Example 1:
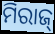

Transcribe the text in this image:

ମିରାଜ୍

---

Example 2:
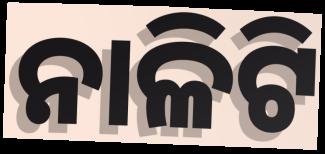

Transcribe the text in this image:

ନାଳିଟି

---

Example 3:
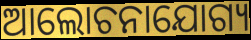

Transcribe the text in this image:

ଆଲୋଚନାଯୋଗ୍ୟ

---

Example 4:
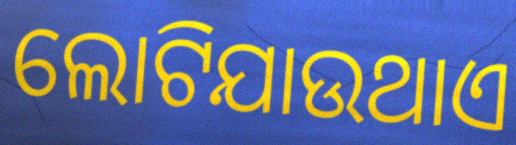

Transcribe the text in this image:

ଲୋଟିଯାଉଥାଏ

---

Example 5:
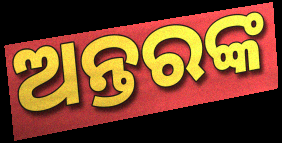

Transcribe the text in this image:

ଅନ୍ତରଙ୍କ